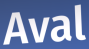
Aval